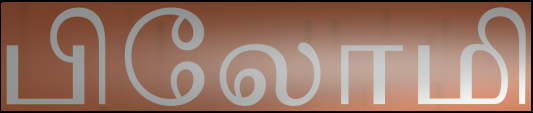
பிலோமி